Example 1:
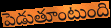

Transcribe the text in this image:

పెడుతూంటుంది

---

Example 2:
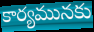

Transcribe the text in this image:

కార్యమునకు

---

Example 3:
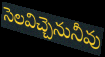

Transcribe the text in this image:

సెలవిచ్చెనునీవు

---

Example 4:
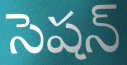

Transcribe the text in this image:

సెషన్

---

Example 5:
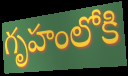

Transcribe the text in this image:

గృహంలోకి